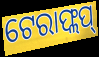
ଟେରାଫ୍ଲପ୍